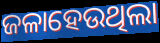
ଜଳାହେଉଥିଲା